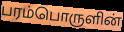
பரம்பொருளின்